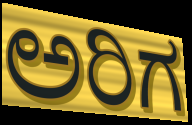
ಅರಿಗ